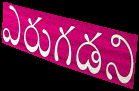
ఎరుగడని